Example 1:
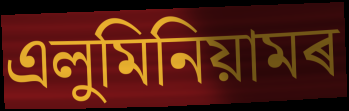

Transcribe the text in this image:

এলুমিনিয়ামৰ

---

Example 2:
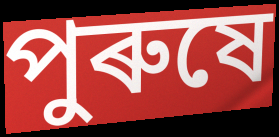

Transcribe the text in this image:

পুৰুষে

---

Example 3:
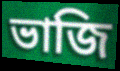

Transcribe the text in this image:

ভাজি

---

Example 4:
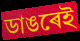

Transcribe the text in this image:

ডাঙৰেই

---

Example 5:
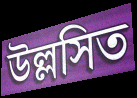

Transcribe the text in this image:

উল্লসিত